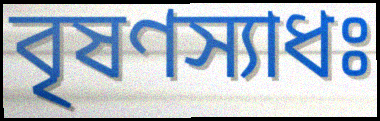
বৃষণস্যাধঃ